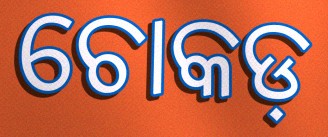
ଚୋକଡ଼